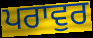
ਪਰਾਵੁਰ